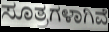
ಸೂತ್ರಗಳಾಗಿವೆ